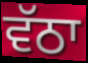
ਵੱਠਾ